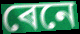
ৰেনে